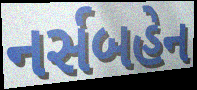
નર્સબહેન